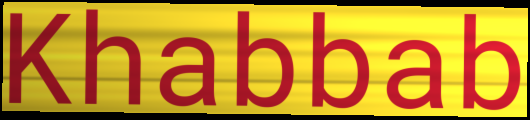
Khabbab